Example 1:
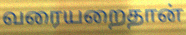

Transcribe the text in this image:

வரையறைதான்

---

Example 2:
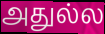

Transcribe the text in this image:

அதுல்ல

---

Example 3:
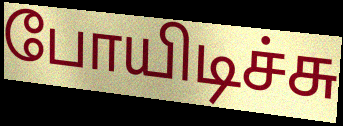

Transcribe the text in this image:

போயிடிச்சு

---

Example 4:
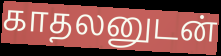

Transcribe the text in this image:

காதலனுடன்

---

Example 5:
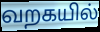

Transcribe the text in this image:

வறகயில்